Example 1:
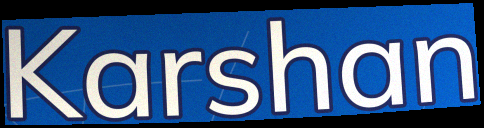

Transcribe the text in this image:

Karshan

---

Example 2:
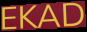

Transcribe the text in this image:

EKAD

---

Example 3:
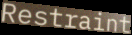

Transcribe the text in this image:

Restraint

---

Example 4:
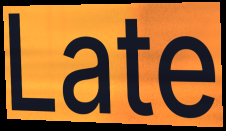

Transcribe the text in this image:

Late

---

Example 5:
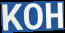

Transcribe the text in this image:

KOH